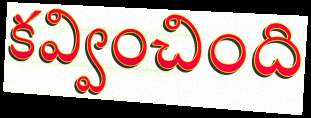
కవ్వించింది